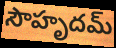
సౌహృదమ్